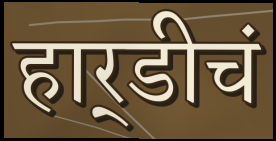
हार्डीचं